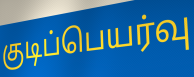
குடிப்பெயர்வு